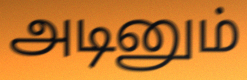
அடினும்